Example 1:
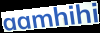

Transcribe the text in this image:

aamhihi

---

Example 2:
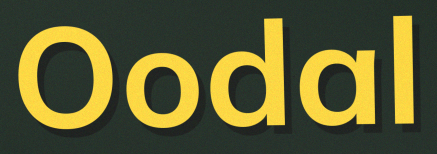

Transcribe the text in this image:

Oodal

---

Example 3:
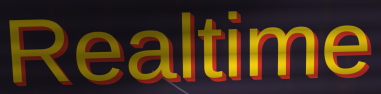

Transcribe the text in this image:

Realtime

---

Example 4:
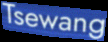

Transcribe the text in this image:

Tsewang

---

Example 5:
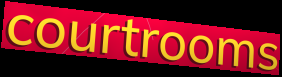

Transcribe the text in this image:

courtrooms